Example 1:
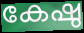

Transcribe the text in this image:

കേഷു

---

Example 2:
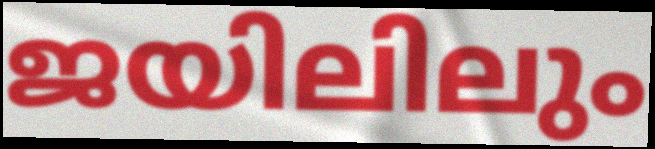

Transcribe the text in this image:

ജയിലിലും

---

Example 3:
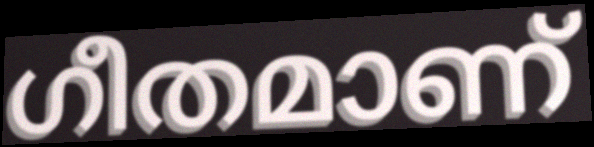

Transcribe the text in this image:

ഗീതമാണ്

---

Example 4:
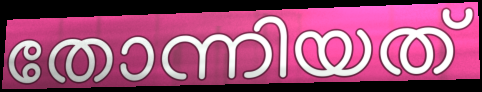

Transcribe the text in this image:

തോന്നിയത്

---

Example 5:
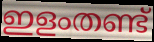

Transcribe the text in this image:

ഇളംതണ്ട്